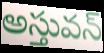
అస్తువన్